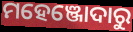
ମହେଞ୍ଜୋଦାରୁ